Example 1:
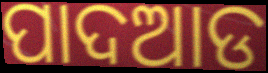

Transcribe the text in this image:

ପାଦଆଡ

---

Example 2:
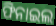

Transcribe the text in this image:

ଫିନାଇଲ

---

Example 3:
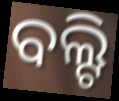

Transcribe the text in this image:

ବଲ୍ଟି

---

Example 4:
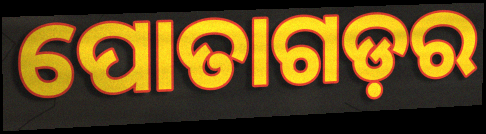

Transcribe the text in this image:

ପୋତାଗଡ଼ର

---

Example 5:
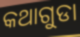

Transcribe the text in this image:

କଥାଗୁଡା